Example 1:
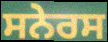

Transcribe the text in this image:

ਸਨੇਰਸ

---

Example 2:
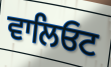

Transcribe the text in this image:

ਵਾਲਿਓਟ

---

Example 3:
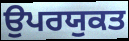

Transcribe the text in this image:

ਉਪਰਯੁਕਤ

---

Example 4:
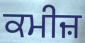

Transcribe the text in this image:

ਕਮੀਜ਼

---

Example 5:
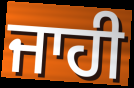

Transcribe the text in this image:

ਜਾਹੀ